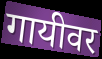
गायीवर